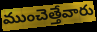
ముంచెత్తేవారు